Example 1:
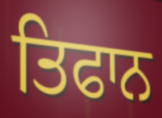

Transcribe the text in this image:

ਤਿਫਾਨ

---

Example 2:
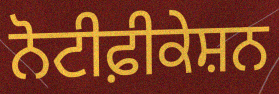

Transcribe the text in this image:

ਨੋਟੀਫ਼ੀਕੇਸ਼ਨ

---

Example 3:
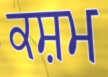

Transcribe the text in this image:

ਕਸ਼ਮ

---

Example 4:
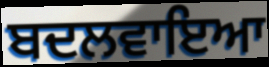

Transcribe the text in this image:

ਬਦਲਵਾਇਆ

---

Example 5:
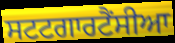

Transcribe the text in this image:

ਸਟਟਗਾਰਟੈਂਸੀਆ